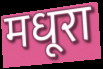
मधूरा